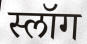
स्लॉग